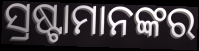
ସ୍ରଷ୍ଟାମାନଙ୍କର